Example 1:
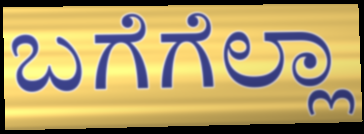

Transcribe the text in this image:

ಬಗೆಗೆಲ್ಲಾ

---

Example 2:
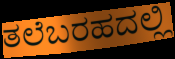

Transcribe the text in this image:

ತಲೆಬರಹದಲ್ಲಿ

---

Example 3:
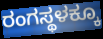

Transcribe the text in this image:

ರಂಗಸ್ಥಳಕ್ಕೂ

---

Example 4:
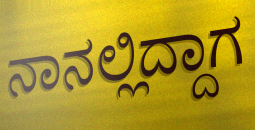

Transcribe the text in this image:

ನಾನಲ್ಲಿದ್ದಾಗ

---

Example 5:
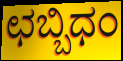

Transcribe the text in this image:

ಛಬ್ಬಿಧಂ